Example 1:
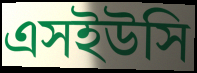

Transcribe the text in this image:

এসইউসি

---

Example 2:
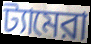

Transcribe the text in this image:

ট্যামেরা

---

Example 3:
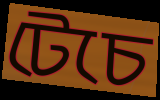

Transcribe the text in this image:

টেচে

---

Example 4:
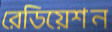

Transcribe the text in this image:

রেডিয়েশন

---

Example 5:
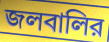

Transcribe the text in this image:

জলবালির